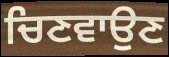
ਚਿਣਵਾਉਣ